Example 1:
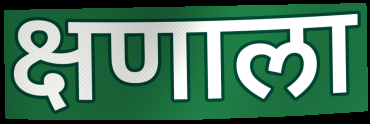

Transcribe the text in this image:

क्षणाला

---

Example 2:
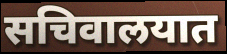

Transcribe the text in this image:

सचिवालयात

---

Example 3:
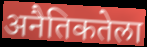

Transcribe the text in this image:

अनैतिकतेला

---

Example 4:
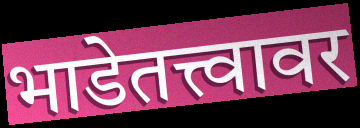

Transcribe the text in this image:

भाडेतत्त्वावर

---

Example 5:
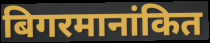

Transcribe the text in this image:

बिगरमानांकित